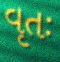
વૃતઃ